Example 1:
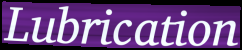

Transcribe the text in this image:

Lubrication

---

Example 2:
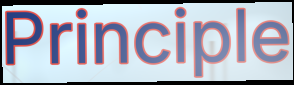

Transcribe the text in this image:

Principle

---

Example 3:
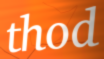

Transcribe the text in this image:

thod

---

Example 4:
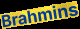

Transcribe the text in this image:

Brahmins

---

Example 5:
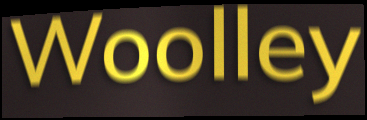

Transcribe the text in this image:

Woolley